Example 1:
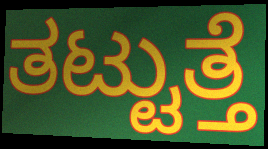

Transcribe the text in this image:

ತಟ್ಟುತ್ತೆ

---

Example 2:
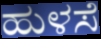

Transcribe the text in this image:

ಹುಳಸೆ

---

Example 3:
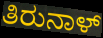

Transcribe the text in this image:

ತಿರುನಾಳ್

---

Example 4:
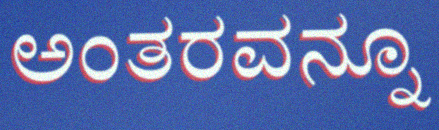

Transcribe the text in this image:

ಅಂತರವನ್ನೂ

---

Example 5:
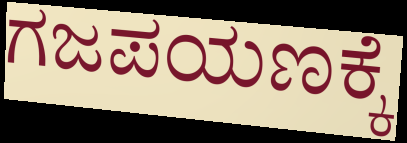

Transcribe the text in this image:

ಗಜಪಯಣಕ್ಕೆ